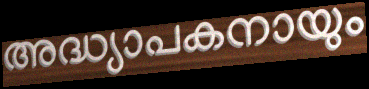
അദ്ധ്യാപകനായും